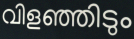
വിളഞ്ഞിടും